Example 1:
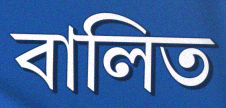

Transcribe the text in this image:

বালিত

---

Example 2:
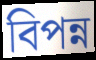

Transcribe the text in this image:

বিপন্ন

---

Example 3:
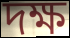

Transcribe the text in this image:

দক্ষ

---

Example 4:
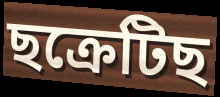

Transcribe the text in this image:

ছক্ৰেটিছ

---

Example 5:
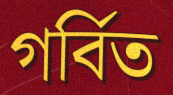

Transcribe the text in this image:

গৰ্বিত